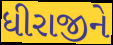
ધીરાજીને